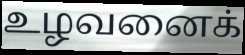
உழவனைக்